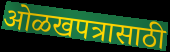
ओळखपत्रासाठी